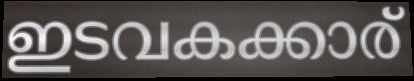
ഇടവകക്കാര്